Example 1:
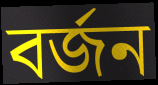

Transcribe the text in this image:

বর্জন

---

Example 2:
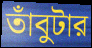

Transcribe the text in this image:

তাঁবুটার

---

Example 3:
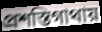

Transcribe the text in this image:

প্রশস্তিগাথায়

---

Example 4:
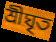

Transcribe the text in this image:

শ্রীঘৃত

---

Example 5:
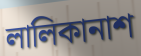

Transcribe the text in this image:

লালিকানাশ